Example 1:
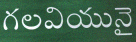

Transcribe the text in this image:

గలవియునై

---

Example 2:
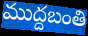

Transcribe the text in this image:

ముద్దబంతి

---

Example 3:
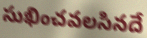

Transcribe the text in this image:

సుఖించవలసినదే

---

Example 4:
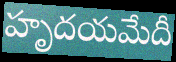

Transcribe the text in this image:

హృదయమేదీ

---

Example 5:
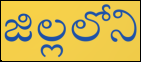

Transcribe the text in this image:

జిల్లలోని